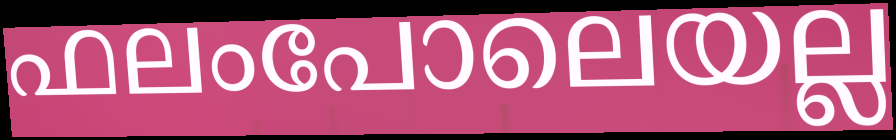
ഫലംപോലെയല്ല